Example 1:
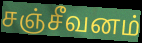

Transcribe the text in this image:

சஞ்சீவனம்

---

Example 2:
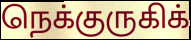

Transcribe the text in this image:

நெக்குருகிக்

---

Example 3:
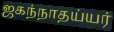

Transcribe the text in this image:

ஜகந்நாதய்யர்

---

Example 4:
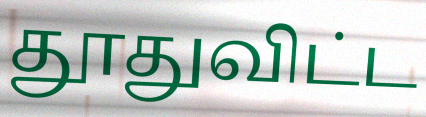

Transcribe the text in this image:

தூதுவிட்ட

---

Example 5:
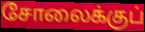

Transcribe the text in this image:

சோலைக்குப்